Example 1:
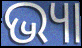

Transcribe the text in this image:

ଭ୍ୟା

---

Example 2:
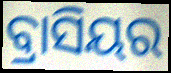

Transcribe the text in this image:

ବ୍ରାସିୟର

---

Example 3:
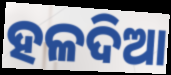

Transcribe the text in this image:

ହଳଦିଆ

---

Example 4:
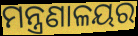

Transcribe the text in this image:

ମନ୍ତ୍ରଣାଳୟର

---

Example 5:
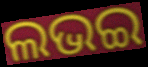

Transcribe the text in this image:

ଲଭଇ